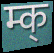
म्क्